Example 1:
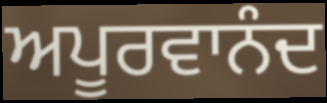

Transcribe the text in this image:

ਅਪੂਰਵਾਨੰਦ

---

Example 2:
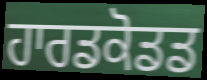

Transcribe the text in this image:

ਹਾਰਡਕੋਡਡ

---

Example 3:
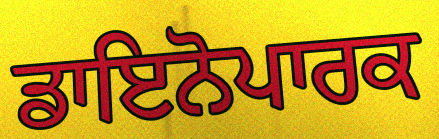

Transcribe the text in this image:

ਡਾਇਨੋਪਾਰਕ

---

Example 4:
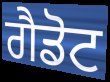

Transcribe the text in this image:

ਗੈਡੋਟ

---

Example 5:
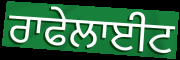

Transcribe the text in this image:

ਰਾਫੇਲਾਈਟ